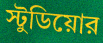
স্টুডিয়োর